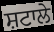
ਸ਼ਟਾਲੇ